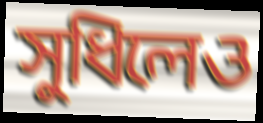
সুধিলেও